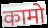
कामो